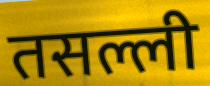
तसल्‍ली